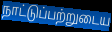
நாட்டுப்பற்றுடைய